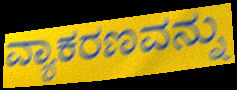
ವ್ಯಾಕರಣವನ್ನು